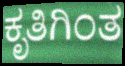
ಕೃತಿಗಿಂತ